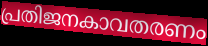
പ്രതിജനകാവതരണം